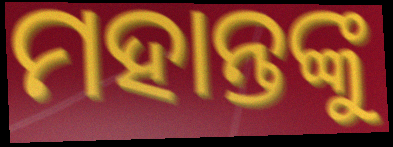
ମହାନ୍ତଙ୍କୁ